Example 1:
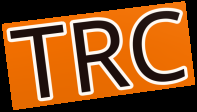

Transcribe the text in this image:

TRC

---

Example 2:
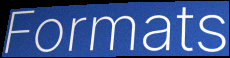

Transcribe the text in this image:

Formats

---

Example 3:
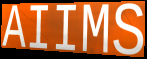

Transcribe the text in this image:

AIIMS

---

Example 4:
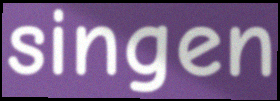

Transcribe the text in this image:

singen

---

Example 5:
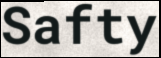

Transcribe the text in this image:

Safty